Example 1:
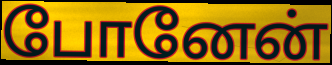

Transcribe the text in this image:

போனேன்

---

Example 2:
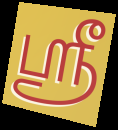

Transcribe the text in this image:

ஸ்ரீ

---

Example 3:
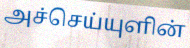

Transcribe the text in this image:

அச்செய்யுளின்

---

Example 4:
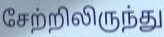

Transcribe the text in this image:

சேற்றிலிருந்து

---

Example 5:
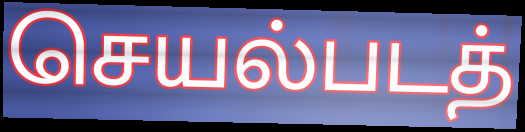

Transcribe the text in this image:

செயல்படத்